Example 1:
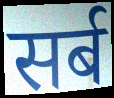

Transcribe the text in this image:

सर्ब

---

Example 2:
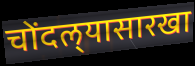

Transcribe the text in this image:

चोंदल्यासारखा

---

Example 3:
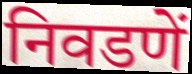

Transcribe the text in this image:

निवडणें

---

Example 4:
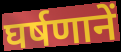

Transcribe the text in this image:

घर्षणानें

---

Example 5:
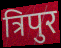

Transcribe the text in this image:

त्रिपुर